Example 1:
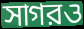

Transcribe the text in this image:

সাগরও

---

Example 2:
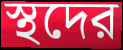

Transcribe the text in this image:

স্থদের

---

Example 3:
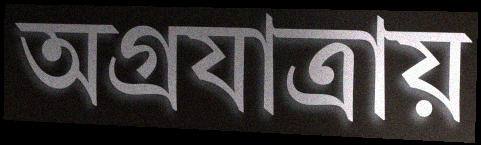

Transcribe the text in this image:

অগ্রযাত্রায়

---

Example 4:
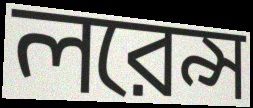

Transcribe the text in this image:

লরেন্স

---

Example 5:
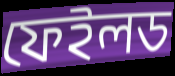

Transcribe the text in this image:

ফেইলড